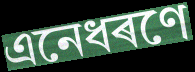
এনেধৰণে